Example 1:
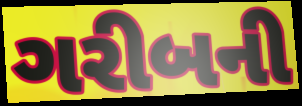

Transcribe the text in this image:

ગરીબની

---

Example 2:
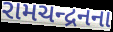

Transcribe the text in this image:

રામચન્દ્રનના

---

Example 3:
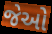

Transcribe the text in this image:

જેઓ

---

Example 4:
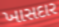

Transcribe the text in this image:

ખાસદાર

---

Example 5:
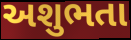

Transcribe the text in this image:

અશુભતા